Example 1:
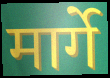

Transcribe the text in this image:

मार्गे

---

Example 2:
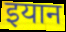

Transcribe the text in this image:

इयान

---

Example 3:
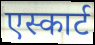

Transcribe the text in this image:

एस्कार्ट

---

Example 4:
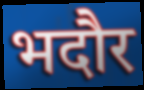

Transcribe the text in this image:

भदौर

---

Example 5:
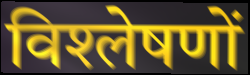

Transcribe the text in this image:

विश्लेषणों